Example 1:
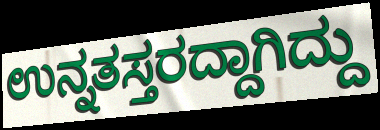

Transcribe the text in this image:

ಉನ್ನತಸ್ತರದ್ದಾಗಿದ್ದು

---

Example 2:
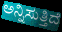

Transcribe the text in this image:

ಅನ್ನಿಸುತ್ತಿದೆ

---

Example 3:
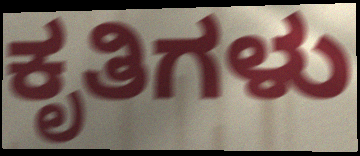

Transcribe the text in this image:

ಕೃತಿಗಳು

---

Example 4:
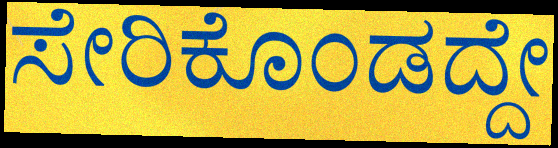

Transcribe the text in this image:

ಸೇರಿಕೊಂಡದ್ದೇ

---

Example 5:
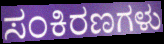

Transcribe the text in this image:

ಸಂಕಿರಣಗಳು